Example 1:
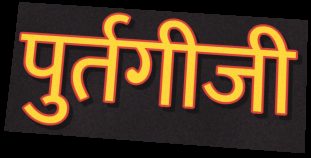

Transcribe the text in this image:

पुर्तगीजी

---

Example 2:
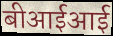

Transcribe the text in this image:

बीआईआई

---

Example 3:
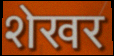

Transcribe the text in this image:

शेखर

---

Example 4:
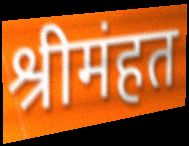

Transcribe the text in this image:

श्रीमंहत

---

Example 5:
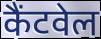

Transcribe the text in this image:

कैंटवेल